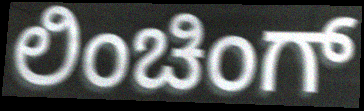
ಲಿಂಚಿಂಗ್